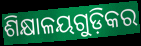
ଶିକ୍ଷାଳୟଗୁଡ଼ିକର